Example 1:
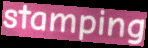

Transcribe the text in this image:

stamping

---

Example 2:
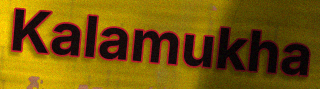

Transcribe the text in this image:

Kalamukha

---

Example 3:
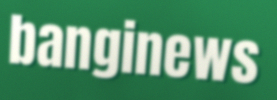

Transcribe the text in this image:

banginews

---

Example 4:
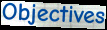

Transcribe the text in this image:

Objectives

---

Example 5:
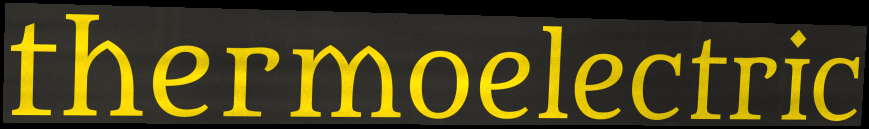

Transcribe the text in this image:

thermoelectric